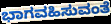
ಭಾಗವಹಿಸುವಂತೆ